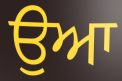
ਉਆ